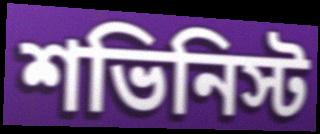
শভিনিস্ট